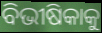
ବିଭୀଷିକାକୁ